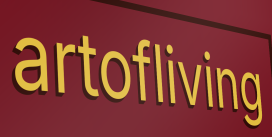
artofliving